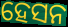
ହେସନ